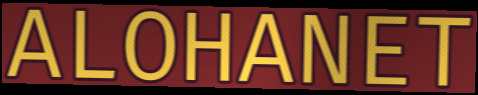
ALOHANET